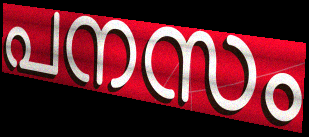
പനസം